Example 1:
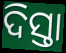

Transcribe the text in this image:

ଦିସ୍ତା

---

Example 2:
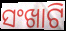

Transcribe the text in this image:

ସଂଖାଟି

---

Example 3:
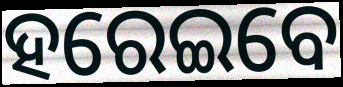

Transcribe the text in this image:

ହରେଇବେ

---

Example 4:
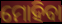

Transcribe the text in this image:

ମୋହିବା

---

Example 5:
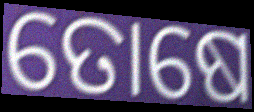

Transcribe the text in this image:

ତୋଷେ